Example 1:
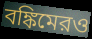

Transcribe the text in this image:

বঙ্কিমেরও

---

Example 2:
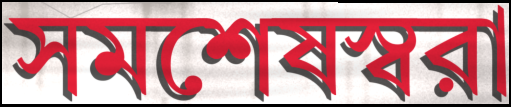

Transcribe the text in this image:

সমশেষস্বরা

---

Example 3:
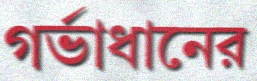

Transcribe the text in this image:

গর্ভাধানের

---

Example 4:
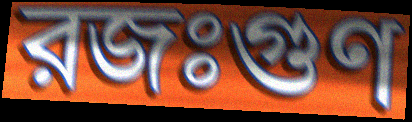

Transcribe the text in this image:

রজঃগুণ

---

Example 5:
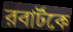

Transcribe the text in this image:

রবার্টকে